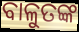
ବାଳୁତଙ୍କ